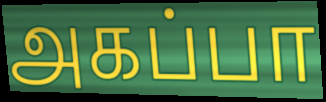
அகப்பா